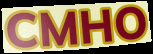
CMHO